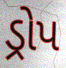
ડ્રોપ